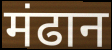
मंढान